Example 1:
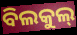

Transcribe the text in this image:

ବିଲକୁଲ୍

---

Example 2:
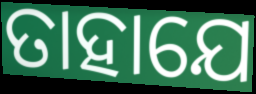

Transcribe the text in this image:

ତାହାଯେ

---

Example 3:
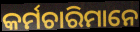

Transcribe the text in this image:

କର୍ମଚାରିମାନେ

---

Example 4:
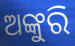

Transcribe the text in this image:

ଅଙ୍କୁରି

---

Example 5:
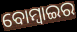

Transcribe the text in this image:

ବୋମ୍ବାଇର